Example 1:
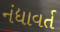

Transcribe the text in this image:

નંદ્યાવર્ત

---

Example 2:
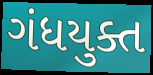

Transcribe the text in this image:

ગંધયુક્ત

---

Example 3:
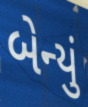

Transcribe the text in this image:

બેન્યું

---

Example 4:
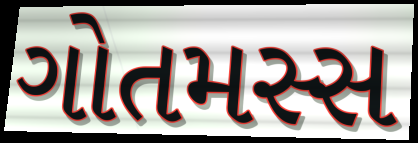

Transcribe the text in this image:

ગોતમસ્સ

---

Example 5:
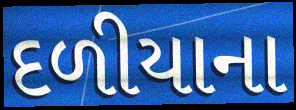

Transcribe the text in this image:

દળીયાના